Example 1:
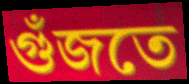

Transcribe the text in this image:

গুঁজতে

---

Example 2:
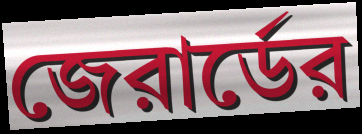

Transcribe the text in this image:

জেরার্ডের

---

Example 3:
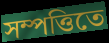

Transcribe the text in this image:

সম্পত্তিতে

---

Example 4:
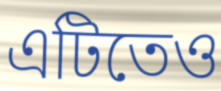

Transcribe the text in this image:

এটিতেও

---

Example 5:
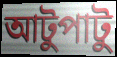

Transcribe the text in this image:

আটুপাটু